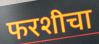
फरशीचा